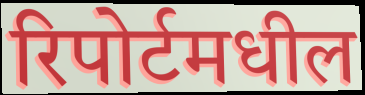
रिपोर्टमधील